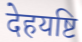
देहयष्टि